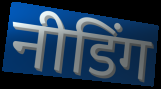
नीडिंग